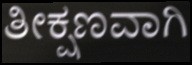
ತೀಕ್ಷಣವಾಗಿ